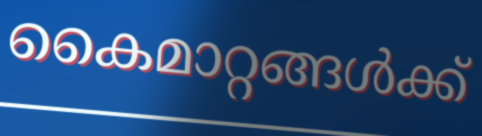
കൈമാറ്റങ്ങൾക്ക്